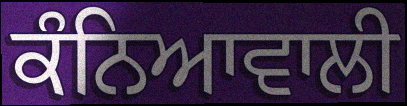
ਕੰਨਿਆਵਾਲੀ